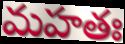
మహతః